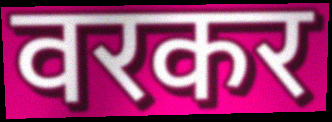
वरकर